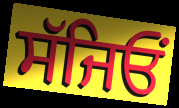
ਸੱਜਿਓਂ